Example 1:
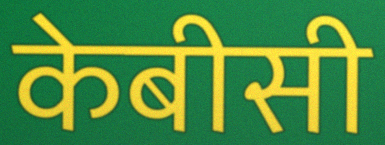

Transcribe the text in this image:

केबीसी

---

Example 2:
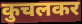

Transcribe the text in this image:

कुचलकर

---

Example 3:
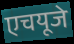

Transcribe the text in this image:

एचयूजे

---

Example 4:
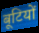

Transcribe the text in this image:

बूटियों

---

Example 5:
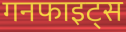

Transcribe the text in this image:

गनफाइट्स